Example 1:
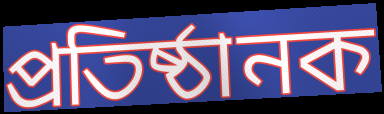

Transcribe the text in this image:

প্ৰতিষ্ঠানক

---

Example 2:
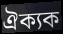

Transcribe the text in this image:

ঐক্যক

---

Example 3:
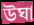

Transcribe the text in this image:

উঘা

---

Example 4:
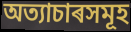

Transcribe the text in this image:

অত্যাচাৰসমূহ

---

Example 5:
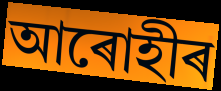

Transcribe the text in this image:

আৰোহীৰ